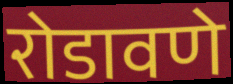
रोडावणे